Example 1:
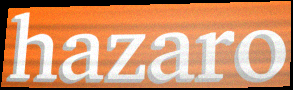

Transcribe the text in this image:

hazaro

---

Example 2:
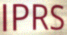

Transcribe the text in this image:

IPRS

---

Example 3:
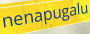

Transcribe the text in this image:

nenapugalu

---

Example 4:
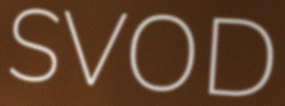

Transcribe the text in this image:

SVOD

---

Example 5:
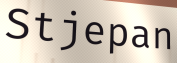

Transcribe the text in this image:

Stjepan